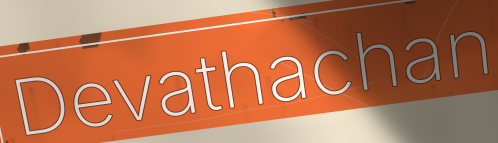
Devathachan